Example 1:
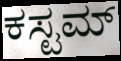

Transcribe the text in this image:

ಕಸ್ಟಮ್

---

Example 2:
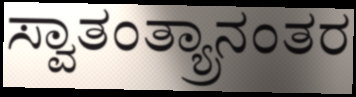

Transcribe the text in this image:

ಸ್ವಾತಂತ್ಯ್ರಾನಂತರ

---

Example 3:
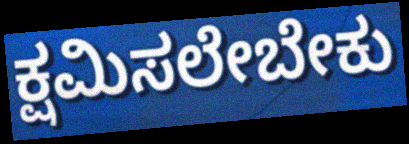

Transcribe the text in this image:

ಕ್ಷಮಿಸಲೇಬೇಕು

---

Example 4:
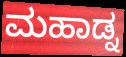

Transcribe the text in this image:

ಮಹಾಡ್ನ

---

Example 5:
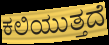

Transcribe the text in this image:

ಕಲಿಯುತ್ತದೆ